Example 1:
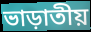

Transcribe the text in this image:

ভাড়াতীয়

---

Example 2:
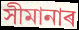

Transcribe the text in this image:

সীমানাৰ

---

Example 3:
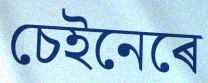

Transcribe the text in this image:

চেইনেৰে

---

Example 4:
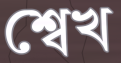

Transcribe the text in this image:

শ্বেখ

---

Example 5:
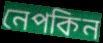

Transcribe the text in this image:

নেপকিন